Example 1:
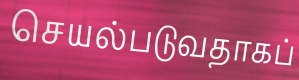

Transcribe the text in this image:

செயல்படுவதாகப்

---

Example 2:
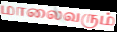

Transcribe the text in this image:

மாலைவரும்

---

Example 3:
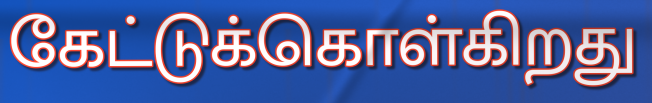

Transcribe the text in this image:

கேட்டுக்கொள்கிறது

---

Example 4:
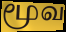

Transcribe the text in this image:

மூவ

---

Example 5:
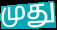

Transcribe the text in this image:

முது